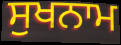
ਸੁਖਨਾਮ